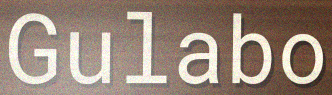
Gulabo